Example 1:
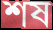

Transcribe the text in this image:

শষ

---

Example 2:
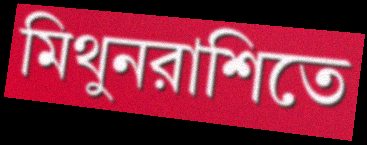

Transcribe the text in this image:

মিথুনরাশিতে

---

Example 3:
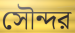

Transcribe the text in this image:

সৌন্দর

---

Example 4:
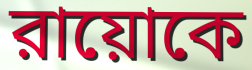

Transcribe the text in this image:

রায়োকে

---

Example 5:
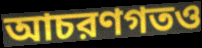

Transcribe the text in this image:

আচরণগতও